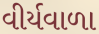
વીર્યવાળા